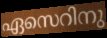
ഏസെറിനു